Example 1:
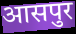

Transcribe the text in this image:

आसपुर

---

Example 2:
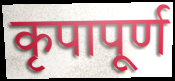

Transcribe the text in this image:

कृपापूर्ण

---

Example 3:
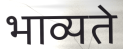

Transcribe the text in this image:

भाव्यते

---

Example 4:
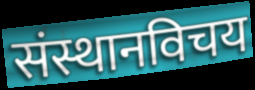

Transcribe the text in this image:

संस्थानविचय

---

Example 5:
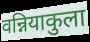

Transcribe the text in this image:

वन्नियाकुला